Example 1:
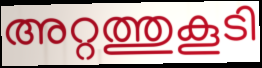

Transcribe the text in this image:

അറ്റത്തുകൂടി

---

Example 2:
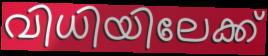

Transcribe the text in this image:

വിധിയിലേക്ക്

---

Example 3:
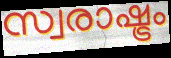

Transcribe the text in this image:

സ്വരാഷ്ട്രം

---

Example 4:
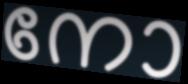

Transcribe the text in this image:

നോ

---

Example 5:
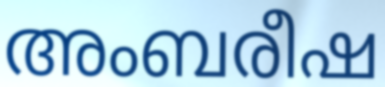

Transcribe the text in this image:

അംബരീഷ